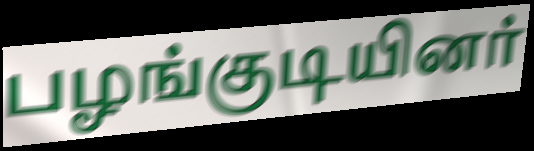
பழங்குடியினர்